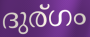
ദുര്ഗം